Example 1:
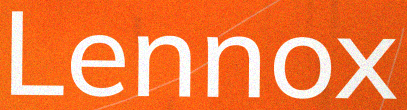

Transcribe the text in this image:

Lennox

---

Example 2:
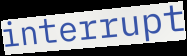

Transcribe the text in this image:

interrupt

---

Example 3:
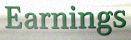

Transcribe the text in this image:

Earnings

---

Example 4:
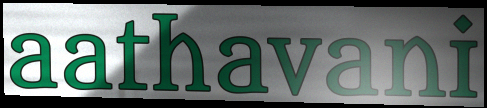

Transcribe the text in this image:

aathavani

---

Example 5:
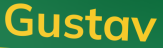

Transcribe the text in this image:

Gustav